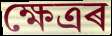
ক্ষেত্ৰৰ